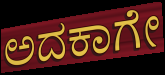
ಅದಕಾಗೇ